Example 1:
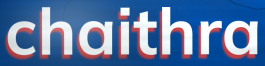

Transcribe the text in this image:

chaithra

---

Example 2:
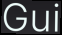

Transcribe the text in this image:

Gui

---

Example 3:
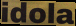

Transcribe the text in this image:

idola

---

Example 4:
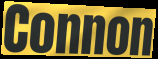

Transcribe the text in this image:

Connon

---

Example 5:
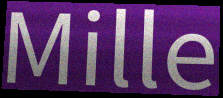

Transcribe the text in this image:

Mille